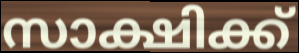
സാക്ഷിക്ക്